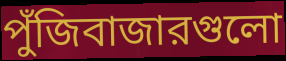
পুঁজিবাজারগুলো